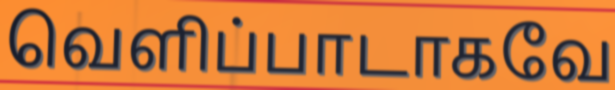
வெளிப்பாடாகவே